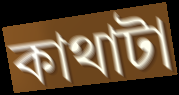
কাথাটা